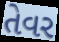
તેવર